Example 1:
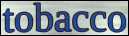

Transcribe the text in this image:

tobacco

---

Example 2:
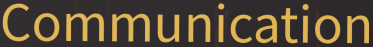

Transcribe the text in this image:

Communication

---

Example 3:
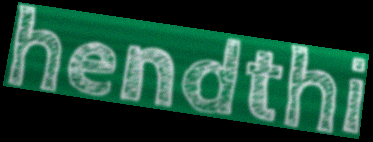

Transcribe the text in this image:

hendthi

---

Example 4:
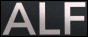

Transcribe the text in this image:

ALF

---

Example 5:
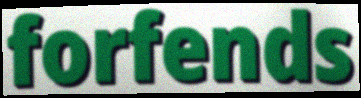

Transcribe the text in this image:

forfends